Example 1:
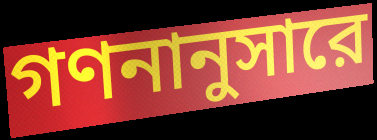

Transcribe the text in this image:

গণনানুসারে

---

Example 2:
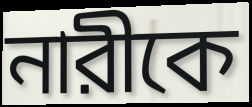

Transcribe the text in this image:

নারীকে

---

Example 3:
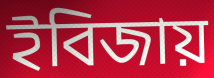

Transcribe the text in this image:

ইবিজায়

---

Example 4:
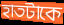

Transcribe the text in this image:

হাতটাকে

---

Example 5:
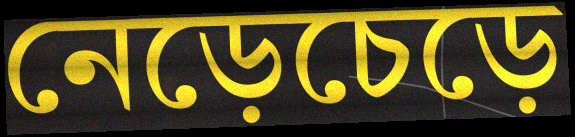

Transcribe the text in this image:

নেড়েচেড়ে